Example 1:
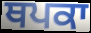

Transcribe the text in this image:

ਥਪਕਾ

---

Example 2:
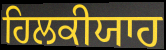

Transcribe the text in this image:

ਹਿਲਕੀਯਾਹ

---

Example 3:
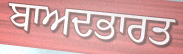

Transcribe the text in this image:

ਬਾਅਦਭਾਰਤ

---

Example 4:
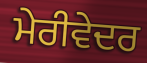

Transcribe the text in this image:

ਮੇਰੀਵੇਦਰ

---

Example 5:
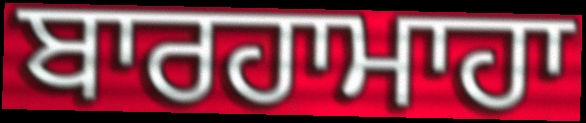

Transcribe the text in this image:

ਬਾਰਹਾਮਾਹਾ